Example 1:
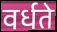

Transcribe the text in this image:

वर्धते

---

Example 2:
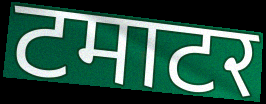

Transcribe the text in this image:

टमाटर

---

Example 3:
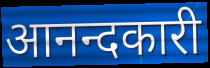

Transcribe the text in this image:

आनन्दकारी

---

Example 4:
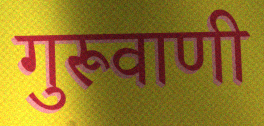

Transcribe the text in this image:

गुरूवाणी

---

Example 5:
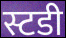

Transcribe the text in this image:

स्टडी